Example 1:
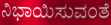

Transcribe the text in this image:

ನಿಭಾಯಿಸುವಂತೆ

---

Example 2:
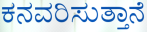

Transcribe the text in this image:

ಕನವರಿಸುತ್ತಾನೆ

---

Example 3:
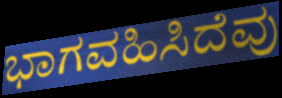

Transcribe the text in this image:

ಭಾಗವಹಿಸಿದೆವು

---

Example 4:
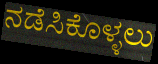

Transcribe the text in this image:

ನಡೆಸಿಕೊಳ್ಳಲು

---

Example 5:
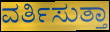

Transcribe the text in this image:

ವರ್ತಿಸುತ್ತಾ